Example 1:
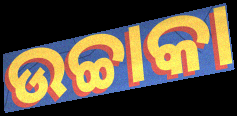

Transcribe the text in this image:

ଉଚ୍ଚାକା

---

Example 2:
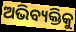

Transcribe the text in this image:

ଅଭିବ୍ୟକ୍ତିକୁ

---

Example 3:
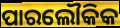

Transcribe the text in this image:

ପାରଲୌକିକ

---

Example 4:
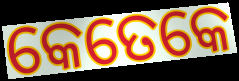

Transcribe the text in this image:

କେତେକେ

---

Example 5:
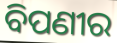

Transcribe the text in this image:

ବିପଣୀର